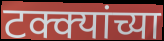
टक्क्यांच्या